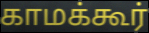
காமக்கூர்